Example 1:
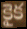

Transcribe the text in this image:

కైక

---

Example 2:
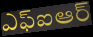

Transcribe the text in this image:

ఎఫ్ఐఆర్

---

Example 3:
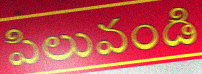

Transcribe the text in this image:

పిలువండి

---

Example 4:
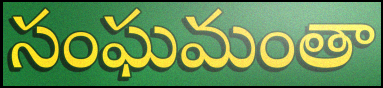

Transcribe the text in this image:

సంఘమంతా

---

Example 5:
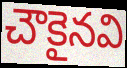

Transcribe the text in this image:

చౌకైనవి